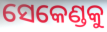
ସେକେଣ୍ଡକୁ